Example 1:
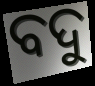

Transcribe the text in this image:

ବଦୁ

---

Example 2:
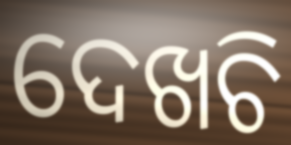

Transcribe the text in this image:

ଦେଖଚି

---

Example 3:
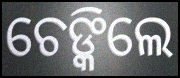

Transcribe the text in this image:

ଚେଙ୍କିଲେ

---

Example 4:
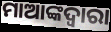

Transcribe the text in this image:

ମାଆଙ୍କଦ୍ଵାରା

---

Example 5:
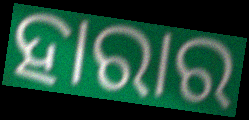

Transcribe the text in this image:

ହାରାର